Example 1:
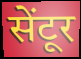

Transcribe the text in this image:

सेंटूर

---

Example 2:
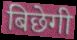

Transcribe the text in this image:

बिछेगी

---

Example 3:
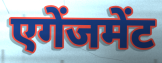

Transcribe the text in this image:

एगेंजमेंट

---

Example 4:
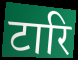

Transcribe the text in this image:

टारि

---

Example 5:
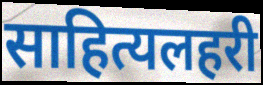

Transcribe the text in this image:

साहित्यलहरी